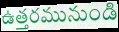
ఉత్తరమునుండి